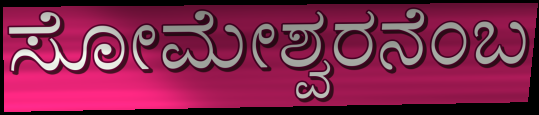
ಸೋಮೇಶ್ವರನೆಂಬ